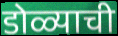
डोळ्याची